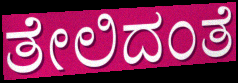
ತೇಲಿದಂತೆ